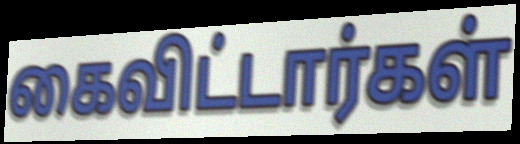
கைவிட்டார்கள்